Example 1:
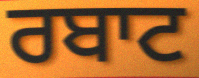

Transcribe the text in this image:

ਰਬਾਟ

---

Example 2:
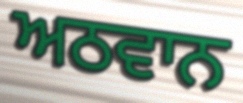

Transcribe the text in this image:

ਅਠਵਾਨ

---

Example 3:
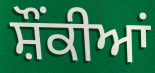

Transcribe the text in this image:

ਸ਼ੌਂਕੀਆਂ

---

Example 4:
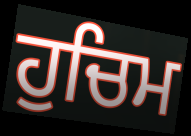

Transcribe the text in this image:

ਹੁਚਿਮ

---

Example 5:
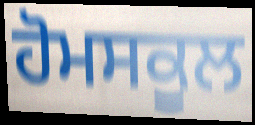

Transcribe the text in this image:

ਹੋਮਸਕੂਲ